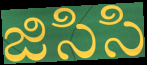
జిసిసి